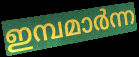
ഇമ്പമാർന്ന